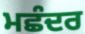
ਮਛੰਦਰ